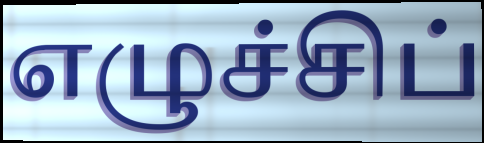
எழுச்சிப்